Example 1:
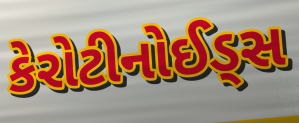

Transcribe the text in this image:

કેરોટીનોઈડ્સ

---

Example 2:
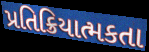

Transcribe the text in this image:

પ્રતિક્રિયાત્મકતા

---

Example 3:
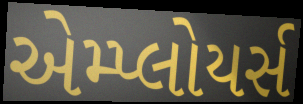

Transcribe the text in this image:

એમ્પ્લોયર્સ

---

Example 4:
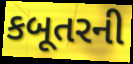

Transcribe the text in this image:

કબૂતરની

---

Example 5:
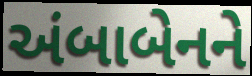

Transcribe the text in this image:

અંબાબેનને